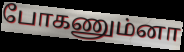
போகணும்னா